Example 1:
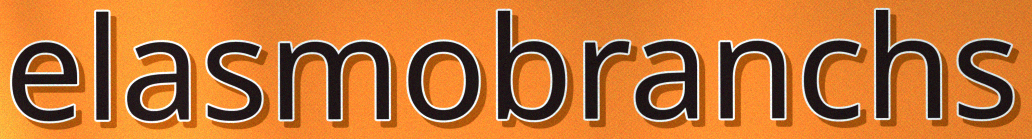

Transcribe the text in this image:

elasmobranchs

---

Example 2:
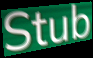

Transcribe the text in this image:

Stub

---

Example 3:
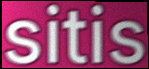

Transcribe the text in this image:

sitis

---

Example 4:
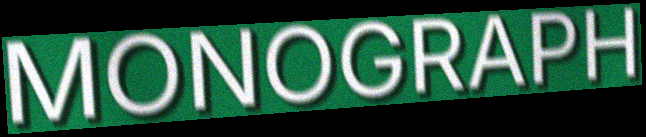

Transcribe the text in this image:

MONOGRAPH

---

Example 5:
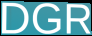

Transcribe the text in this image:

DGR